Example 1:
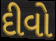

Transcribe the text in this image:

દીવો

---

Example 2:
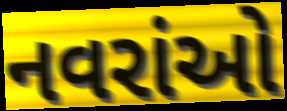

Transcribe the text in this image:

નવરાંઓ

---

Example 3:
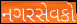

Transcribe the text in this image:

નગરસેવકો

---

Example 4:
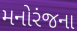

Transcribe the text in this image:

મનોરંજના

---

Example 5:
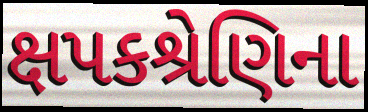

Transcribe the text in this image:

ક્ષપકશ્રેણિના